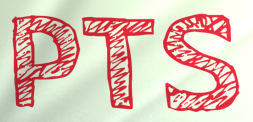
PTS